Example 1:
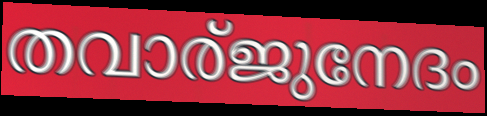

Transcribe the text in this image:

തവാര്ജുനേദം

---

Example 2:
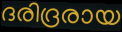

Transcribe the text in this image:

ദരിദ്രരായ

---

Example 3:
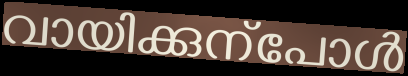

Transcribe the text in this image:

വായിക്കുന്പോൾ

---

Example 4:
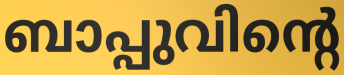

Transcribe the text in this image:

ബാപ്പുവിന്റെ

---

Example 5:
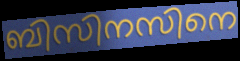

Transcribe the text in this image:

ബിസിനസിനെ